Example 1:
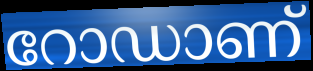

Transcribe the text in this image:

റോഡാണ്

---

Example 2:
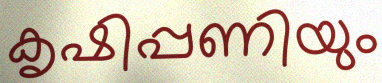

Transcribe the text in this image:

കൃഷിപ്പണിയും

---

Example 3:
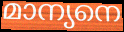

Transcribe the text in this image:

മാന്യനെ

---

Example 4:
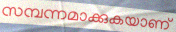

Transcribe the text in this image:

സമ്പന്നമാക്കുകയാണ്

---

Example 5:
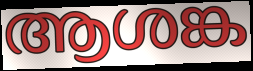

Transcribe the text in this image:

ആശങ്ക